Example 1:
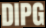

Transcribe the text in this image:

DIPG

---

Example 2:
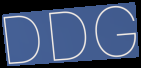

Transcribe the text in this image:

DDG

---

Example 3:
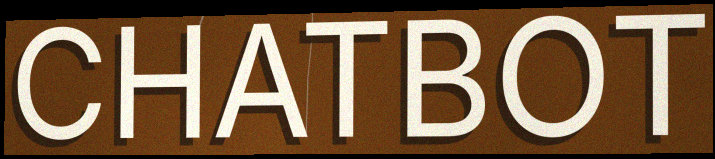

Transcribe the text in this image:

CHATBOT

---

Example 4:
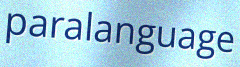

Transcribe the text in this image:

paralanguage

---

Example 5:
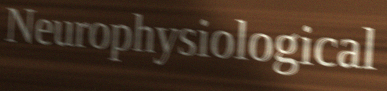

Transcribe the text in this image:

Neurophysiological